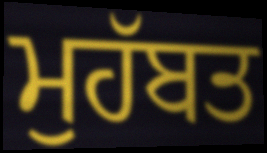
ਮੁਹੱਬਤ